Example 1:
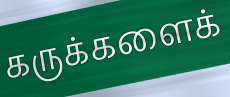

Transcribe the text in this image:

கருக்களைக்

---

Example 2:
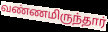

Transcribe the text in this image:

வண்ணமிருந்தார்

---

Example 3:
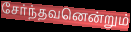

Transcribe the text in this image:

சேர்ந்தவனென்றும்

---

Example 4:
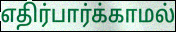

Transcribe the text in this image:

எதிர்பார்க்காமல்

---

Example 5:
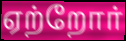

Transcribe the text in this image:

ஏற்றோர்